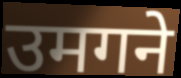
उमगने